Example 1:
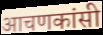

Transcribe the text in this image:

आचणकांसी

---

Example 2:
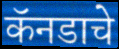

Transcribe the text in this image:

कॅनडाचे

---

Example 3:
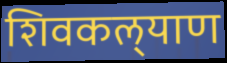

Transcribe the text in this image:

शिवकल्याण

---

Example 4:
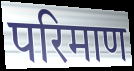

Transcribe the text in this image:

परिमाण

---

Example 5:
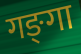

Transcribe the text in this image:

गङ्‍गा